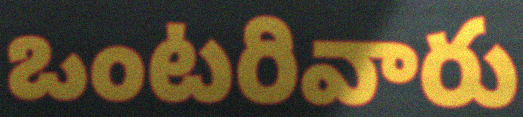
ఒంటరివారు